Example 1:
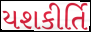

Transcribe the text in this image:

યશકીર્તિ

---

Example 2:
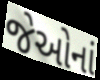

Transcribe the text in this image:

જેઓનાં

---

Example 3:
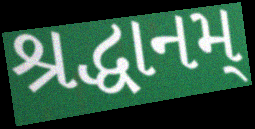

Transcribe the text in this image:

શ્રદ્ધાનમ્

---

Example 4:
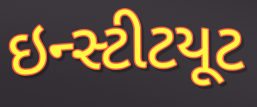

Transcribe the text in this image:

ઇન્સ્ટીટયૂટ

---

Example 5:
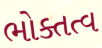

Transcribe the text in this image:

ભોક્તત્વ